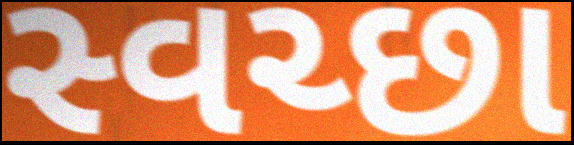
સ્વચ્છા